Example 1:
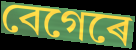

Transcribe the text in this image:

বেগেৰে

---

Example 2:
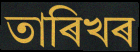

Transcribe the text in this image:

তাৰিখৰ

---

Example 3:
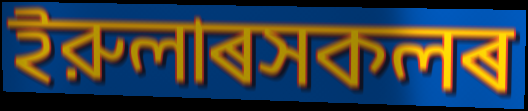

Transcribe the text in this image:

ইৰুলাৰসকলৰ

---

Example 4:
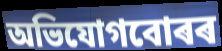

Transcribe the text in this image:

অভিযোগবোৰৰ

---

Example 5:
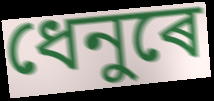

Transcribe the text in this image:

ধেনুৰে